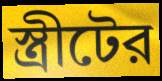
স্ত্রীটের